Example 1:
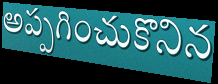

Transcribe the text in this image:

అప్పగించుకొనిన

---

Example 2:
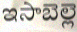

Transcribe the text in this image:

ఇసాబెల్లె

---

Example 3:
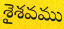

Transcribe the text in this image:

శైశవము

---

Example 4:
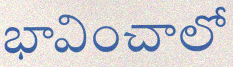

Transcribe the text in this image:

భావించాలో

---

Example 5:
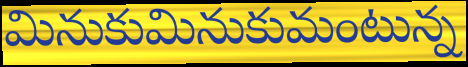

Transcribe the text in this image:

మినుకుమినుకుమంటున్న